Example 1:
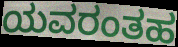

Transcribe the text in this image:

ಯವರಂತಹ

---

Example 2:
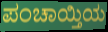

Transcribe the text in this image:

ಪಂಚಾಯ್ತಿಯ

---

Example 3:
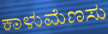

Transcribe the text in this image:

ಕಾಳುಮೆಣಸು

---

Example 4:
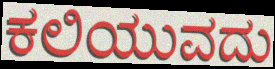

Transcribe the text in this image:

ಕಲಿಯುವದು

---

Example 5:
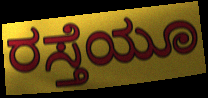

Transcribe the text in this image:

ರಸ್ತೆಯೂ